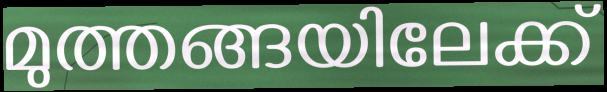
മുത്തങ്ങയിലേക്ക്